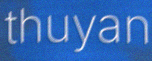
thuyan